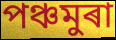
পঞ্চমুৰা